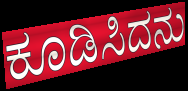
ಕೂಡಿಸಿದನು